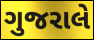
ગુજરાલે